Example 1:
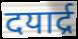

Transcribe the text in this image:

दयार्द्र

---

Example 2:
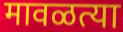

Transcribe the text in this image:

मावळत्या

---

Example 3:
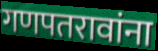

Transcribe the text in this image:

गणपतरावांना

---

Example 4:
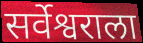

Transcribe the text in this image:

सर्वेश्वराला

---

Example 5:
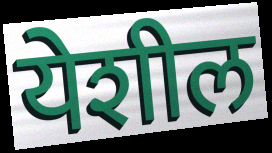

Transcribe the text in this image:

येशील